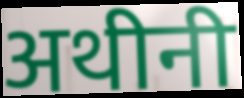
अथीनी